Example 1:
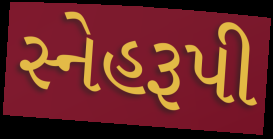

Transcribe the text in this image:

સ્નેહરૂપી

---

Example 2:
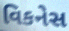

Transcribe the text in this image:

વિકનેસ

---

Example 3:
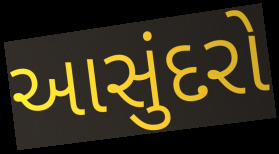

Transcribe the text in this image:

આસુંદરો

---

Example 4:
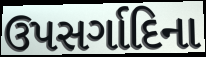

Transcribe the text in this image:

ઉપસર્ગાદિના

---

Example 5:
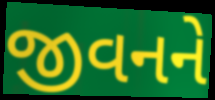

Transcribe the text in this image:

જીવનને